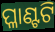
ପ୍ଳାଣ୍ଟଟି